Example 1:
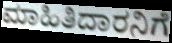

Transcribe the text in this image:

ಮಾಹಿತಿದಾರನಿಗೆ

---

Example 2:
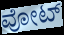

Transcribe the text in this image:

ವೋಟ್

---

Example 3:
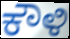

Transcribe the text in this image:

ಕೌಳಿ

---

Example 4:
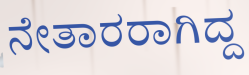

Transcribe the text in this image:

ನೇತಾರರಾಗಿದ್ದ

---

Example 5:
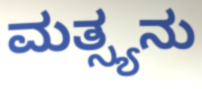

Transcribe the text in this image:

ಮತ್ಸ್ಯನು